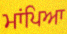
ਮਾਂਪਿਆ